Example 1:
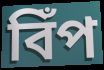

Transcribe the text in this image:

বিঁপ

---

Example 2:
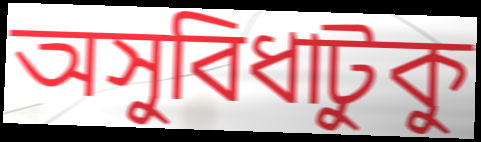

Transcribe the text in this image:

অসুবিধাটুকু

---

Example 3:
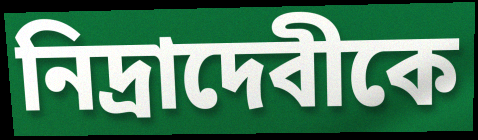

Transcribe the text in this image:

নিদ্রাদেবীকে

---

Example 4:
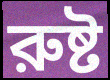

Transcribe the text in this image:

রুষ্ট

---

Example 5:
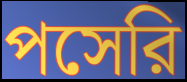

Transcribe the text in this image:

পসেরি